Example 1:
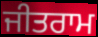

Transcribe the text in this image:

ਜੀਤਰਾਮ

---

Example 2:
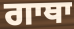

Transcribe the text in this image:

ਗਾਥਾ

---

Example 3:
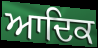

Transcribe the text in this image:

ਆਦਿਕ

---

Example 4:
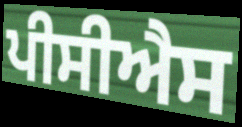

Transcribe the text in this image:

ਪੀਸੀਐਸ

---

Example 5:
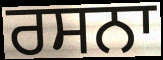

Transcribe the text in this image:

ਰਸਨਾ